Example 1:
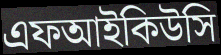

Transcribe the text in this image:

এফআইকিউসি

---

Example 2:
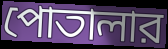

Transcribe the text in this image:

পোতালার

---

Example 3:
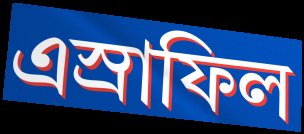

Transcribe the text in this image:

এস্রাফিল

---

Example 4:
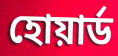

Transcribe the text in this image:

হোয়ার্ড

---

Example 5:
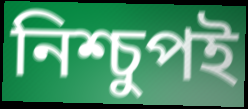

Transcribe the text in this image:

নিশ্চুপই